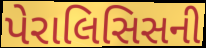
પેરાલિસિસની